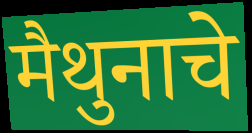
मैथुनाचे